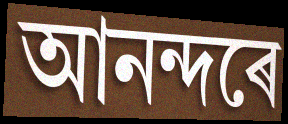
আনন্দৰে